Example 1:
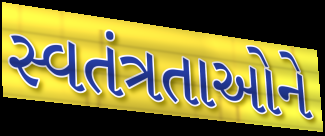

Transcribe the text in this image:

સ્વતંત્રતાઓને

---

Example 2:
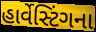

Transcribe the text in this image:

હાર્વેસ્ટિંગના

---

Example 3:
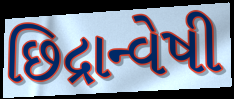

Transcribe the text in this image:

છિદ્રાન્વેષી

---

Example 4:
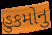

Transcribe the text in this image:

હુકમોનુ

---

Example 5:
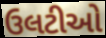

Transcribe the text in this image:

ઉલટીઓ